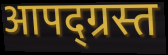
आपद्ग्रस्त